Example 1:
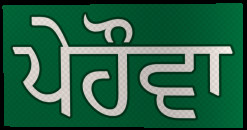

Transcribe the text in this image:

ਪੇਹੌਵਾ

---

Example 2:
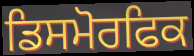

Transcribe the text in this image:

ਡਿਸਮੋਰਫਿਕ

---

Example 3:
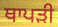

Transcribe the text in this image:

ਥਾਪੜੀ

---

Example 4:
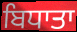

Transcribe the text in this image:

ਬਿਧਾਤਾ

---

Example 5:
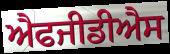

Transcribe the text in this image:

ਐਫਜੀਡੀਐਸ